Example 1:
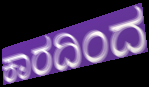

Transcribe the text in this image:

ಕಾರದಿಂದ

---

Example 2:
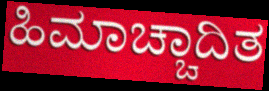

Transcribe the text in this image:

ಹಿಮಾಚ್ಚಾದಿತ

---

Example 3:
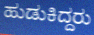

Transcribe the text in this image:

ಹುಡುಕಿದ್ದರು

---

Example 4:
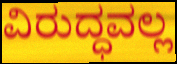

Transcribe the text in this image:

ವಿರುದ್ಧವಲ್ಲ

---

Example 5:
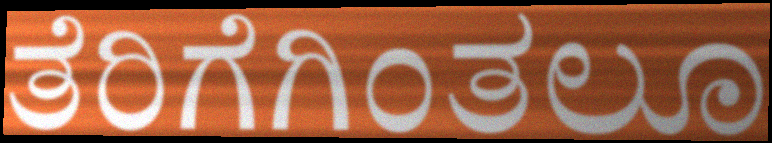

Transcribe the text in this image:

ತೆರಿಗೆಗಿಂತಲೂ